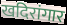
खदिरांगार